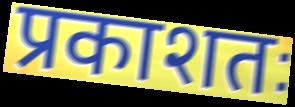
प्रकाशतः